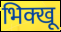
भिक्‍खू